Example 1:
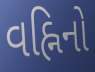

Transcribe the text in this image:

વહ્નિનો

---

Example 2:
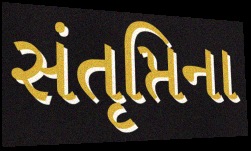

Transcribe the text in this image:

સંતૃપ્તિના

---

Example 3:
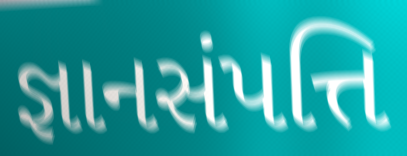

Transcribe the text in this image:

જ્ઞાનસંપત્તિ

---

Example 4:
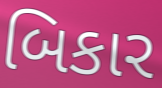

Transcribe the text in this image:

બિકાર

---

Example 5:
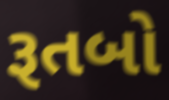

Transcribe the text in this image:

રૂતબો